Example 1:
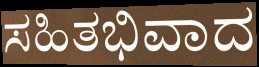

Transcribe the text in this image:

ಸಹಿತಭಿವಾದ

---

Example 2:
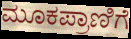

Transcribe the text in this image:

ಮೂಕಪ್ರಾಣಿಗೆ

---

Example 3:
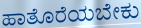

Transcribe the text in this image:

ಹಾತೊರೆಯಬೇಕು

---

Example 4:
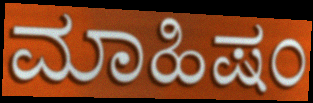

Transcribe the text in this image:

ಮಾಹಿಷಂ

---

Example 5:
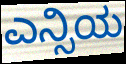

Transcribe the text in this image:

ಎನ್ಸಿಯ